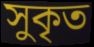
সুকৃত